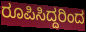
ರೂಪಿಸಿದ್ದರಿಂದ